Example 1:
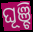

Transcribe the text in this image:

ଘୂଞ୍ଚି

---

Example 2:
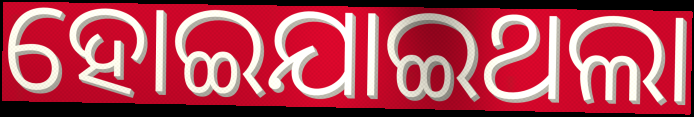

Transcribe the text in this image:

ହୋଇଯାଇଥଲା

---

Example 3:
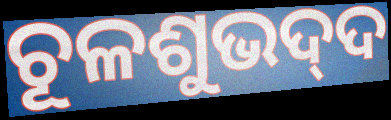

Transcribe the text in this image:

ଚୂଳଶୁଭଦ୍‍ଦ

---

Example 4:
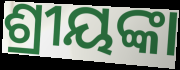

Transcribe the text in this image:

ଶ୍ରୀୟଙ୍କା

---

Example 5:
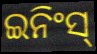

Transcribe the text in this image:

ଇନିଂସ୍